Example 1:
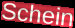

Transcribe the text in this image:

Schein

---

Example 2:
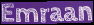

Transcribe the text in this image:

Emraan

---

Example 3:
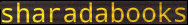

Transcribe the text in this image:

sharadabooks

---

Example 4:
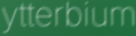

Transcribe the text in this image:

ytterbium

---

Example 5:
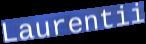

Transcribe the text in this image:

Laurentii